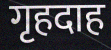
गृहदाह